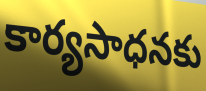
కార్యసాధనకు